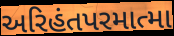
અરિહંતપરમાત્મા